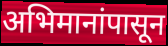
अभिमानांपासून